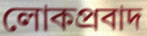
লোকপ্রবাদ